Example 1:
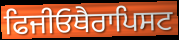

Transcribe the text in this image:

ਫਿਜੀਓਥੈਰਾਪਿਸਟ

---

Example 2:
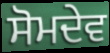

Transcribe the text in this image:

ਸੋਮਦੇਵ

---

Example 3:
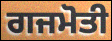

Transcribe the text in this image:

ਗਜਮੋਤੀ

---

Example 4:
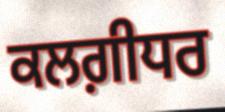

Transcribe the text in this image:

ਕਲਗ਼ੀਧਰ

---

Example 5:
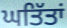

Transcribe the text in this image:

ਘਤਿੱਤਾਂ